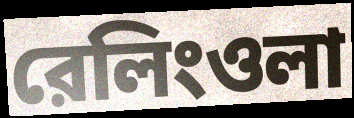
রেলিংওলা